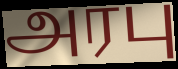
அரபு